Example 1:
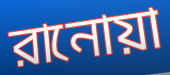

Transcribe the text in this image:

রানোয়া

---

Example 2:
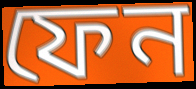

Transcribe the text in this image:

ফেন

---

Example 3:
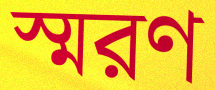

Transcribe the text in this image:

স্মরণ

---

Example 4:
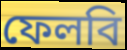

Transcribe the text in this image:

ফেলবি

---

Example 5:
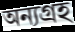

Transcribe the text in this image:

অন্যগ্রহ